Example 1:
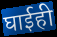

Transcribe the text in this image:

घाईही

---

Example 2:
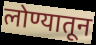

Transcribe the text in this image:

लोण्यातून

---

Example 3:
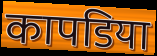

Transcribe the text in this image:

कापडिया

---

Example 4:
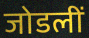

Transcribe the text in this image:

जोडलीं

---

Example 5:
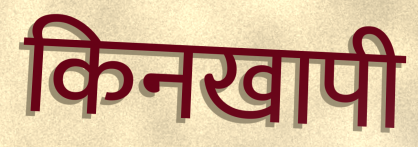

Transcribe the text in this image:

किनखापी